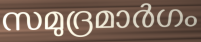
സമുദ്രമാർഗം